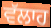
ਵੱਲਾਹ